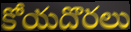
కోయదొరలు